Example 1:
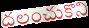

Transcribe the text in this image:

దలంచుకొని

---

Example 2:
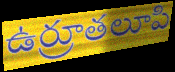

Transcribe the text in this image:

ఉర్రూతలూపి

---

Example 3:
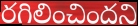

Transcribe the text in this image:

రగిలించిందని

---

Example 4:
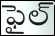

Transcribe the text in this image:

ఫైల్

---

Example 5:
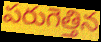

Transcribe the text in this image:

పరుగెత్తిన